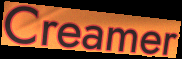
Creamer